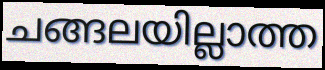
ചങ്ങലയില്ലാത്ത